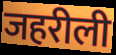
जहरीली